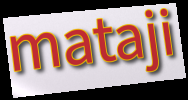
mataji